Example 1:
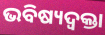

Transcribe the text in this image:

ଭବିଷ୍ୟଦ୍ବକ୍ତା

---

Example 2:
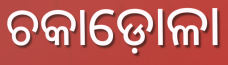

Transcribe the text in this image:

ଚକାଡ଼ୋଳା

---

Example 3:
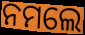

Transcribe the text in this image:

ନମଲେ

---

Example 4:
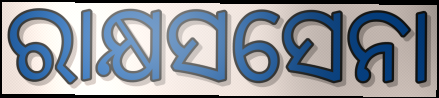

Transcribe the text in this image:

ରାକ୍ଷସସେନା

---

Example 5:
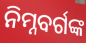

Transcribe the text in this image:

ନିମ୍ନବର୍ଗଙ୍କ